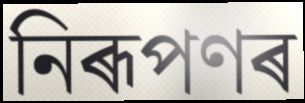
নিৰূপণৰ